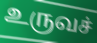
உருவச்